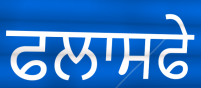
ਫਲਾਸਫੇ